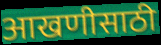
आखणीसाठी